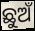
ଛୁଅଁ